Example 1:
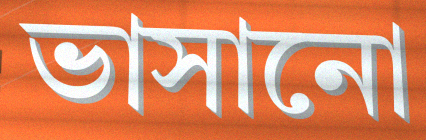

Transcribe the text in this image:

ভাসানো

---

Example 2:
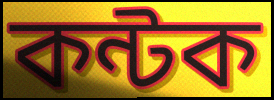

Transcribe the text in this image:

কন্টক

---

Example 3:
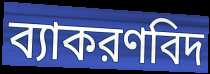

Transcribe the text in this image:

ব্যাকরণবিদ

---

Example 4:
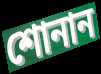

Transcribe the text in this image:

শোনান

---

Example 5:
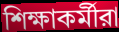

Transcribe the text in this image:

শিক্ষাকর্মীরা